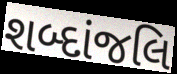
શબ્દાંજલિ